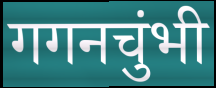
गगनचुंभी